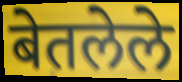
बेतलेले